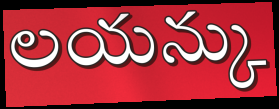
లయన్కు